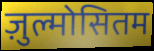
ज़ुल्मोसितम